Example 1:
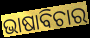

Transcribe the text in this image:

ଭାଷାବିଚାର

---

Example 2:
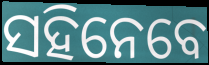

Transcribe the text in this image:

ସହିନେବେ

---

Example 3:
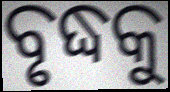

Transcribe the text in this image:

ବୃଦ୍ଧକୁ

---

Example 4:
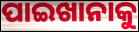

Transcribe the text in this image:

ପାଇଖାନାକୁ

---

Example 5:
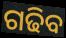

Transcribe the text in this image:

ଗଢିବ